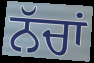
ਨੱਚਾਂ